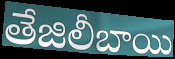
తేజిలీబాయి